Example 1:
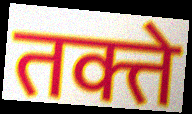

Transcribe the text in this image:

तक्ते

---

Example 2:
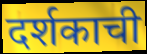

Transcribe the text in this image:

दर्शकाची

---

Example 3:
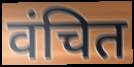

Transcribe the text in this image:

वंचित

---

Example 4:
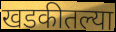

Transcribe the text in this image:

खडकीतल्या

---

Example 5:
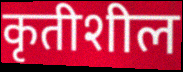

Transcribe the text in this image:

कृतीशील